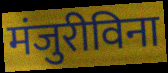
मंजुरीविना